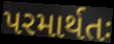
પરમાર્થતઃ